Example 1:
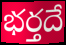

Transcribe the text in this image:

భర్తదే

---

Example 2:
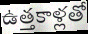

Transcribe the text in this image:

ఉత్తకాళ్లతో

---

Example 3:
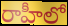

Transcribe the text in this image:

రాహీలో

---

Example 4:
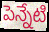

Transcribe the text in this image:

పెన్నేటి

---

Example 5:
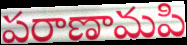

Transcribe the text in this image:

పరాణామపి